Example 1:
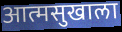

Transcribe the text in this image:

आत्मसुखाला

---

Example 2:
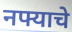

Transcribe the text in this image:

नफ्याचे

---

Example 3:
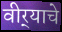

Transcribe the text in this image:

वीर्याचे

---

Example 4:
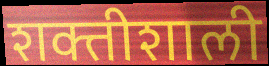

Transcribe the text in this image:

शक्तीशाली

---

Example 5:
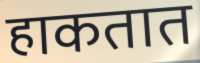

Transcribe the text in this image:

हाकतात